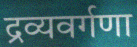
द्रव्यवर्गणा